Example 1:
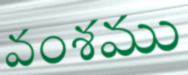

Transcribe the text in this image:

వంశము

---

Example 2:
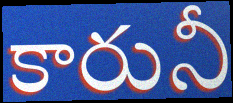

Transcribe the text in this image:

కారునీ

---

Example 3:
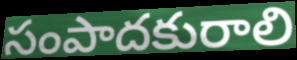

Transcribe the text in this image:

సంపాదకురాలి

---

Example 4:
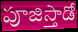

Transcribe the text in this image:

పూజిస్తాడో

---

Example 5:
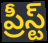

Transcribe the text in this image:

ప్రీస్ట్